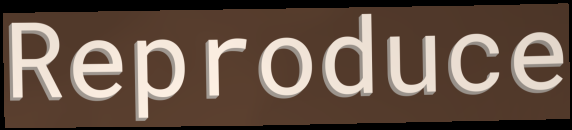
Reproduce